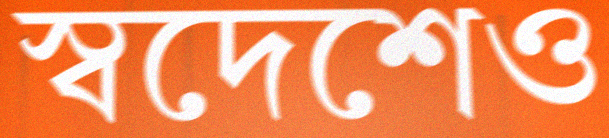
স্বদেশেও